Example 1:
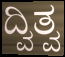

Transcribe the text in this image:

ದ್ವಿತ್ವ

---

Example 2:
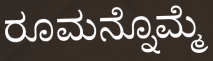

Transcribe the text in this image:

ರೂಮನ್ನೊಮ್ಮೆ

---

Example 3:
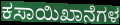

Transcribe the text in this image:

ಕಸಾಯಿಖಾನೆಗಳ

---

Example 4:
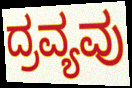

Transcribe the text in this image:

ದ್ರವ್ಯವು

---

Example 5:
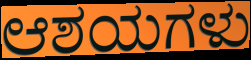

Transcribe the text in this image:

ಆಶಯಗಳು